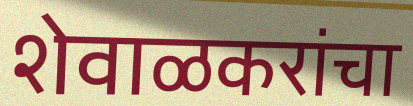
शेवाळकरांचा